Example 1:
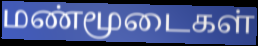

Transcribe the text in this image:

மண்மூடைகள்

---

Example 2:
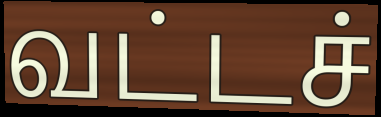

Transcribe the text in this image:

வட்டச்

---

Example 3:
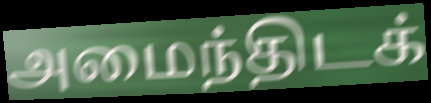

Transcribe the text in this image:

அமைந்திடக்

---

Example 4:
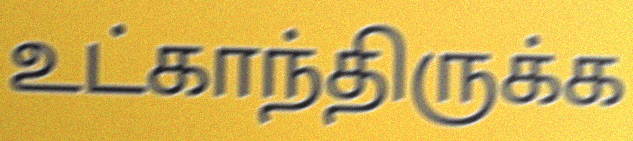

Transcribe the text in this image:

உட்காந்திருக்க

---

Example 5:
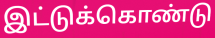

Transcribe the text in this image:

இட்டுக்கொண்டு